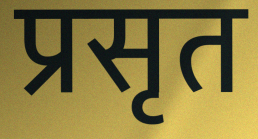
प्रसृत